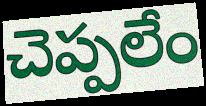
చెప్పలేం